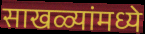
साखळ्यांमध्ये